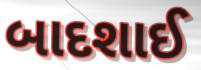
બાદશાઈ